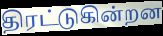
திரட்டுகின்றன